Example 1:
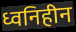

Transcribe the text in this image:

ध्वनिहीन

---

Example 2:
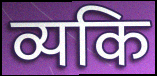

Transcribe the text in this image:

व्यकि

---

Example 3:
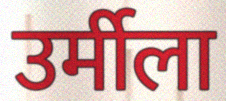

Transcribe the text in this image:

उर्मीला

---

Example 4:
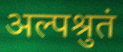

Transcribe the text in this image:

अल्पश्रुतं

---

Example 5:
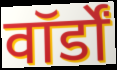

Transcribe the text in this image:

वॉर्डों